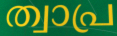
ത്വാപ്ര